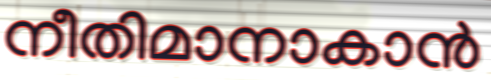
നീതിമാനാകാൻ